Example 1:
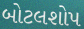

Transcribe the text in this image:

બોટલશોપ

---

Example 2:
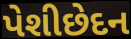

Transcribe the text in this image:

પેશીછેદન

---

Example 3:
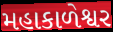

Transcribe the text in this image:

મહાકાળેશ્વર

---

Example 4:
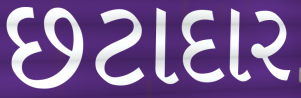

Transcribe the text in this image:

છટાદાર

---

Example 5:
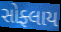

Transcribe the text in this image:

સોફ્લાય